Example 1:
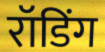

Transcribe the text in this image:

रॉडिंग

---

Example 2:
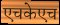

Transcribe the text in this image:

एचकेएच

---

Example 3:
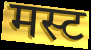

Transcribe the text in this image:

मस्‍ट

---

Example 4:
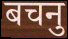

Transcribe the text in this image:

बचनु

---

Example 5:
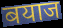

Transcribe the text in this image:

बयाज